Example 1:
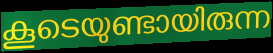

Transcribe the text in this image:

കൂടെയുണ്ടായിരുന്ന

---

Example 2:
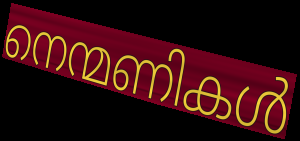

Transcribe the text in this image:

നെന്മണികൾ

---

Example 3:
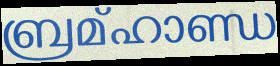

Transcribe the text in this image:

ബ്രമ്ഹാണ്ഡ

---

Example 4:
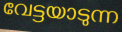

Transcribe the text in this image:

വേട്ടയാടുന്ന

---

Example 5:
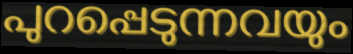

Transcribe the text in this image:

പുറപ്പെടുന്നവയും